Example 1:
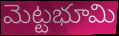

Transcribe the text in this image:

మెట్టభూమి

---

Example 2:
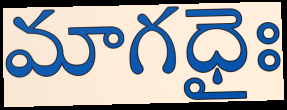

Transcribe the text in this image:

మాగధైః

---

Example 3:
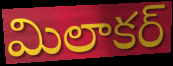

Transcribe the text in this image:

మిలాకర్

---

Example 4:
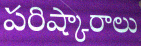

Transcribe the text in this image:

పరిష్కారాలు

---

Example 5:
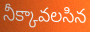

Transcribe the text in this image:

నీక్కావలసిన